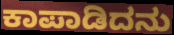
ಕಾಪಾಡಿದನು